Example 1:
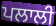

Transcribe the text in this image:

ਪਲਾਲੀ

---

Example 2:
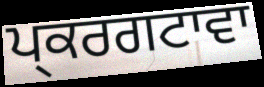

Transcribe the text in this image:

ਪ੍ਕਰਗਟਾਵਾ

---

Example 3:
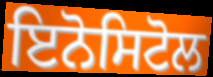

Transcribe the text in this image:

ਇਨੋਸਿਟੋਲ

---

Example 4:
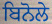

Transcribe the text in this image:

ਬਿਨੋਲੇ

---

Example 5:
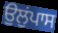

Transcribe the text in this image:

ਉਲੁਂਪਾਸ